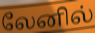
லேனில்